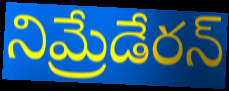
నిమ్రేడేరన్